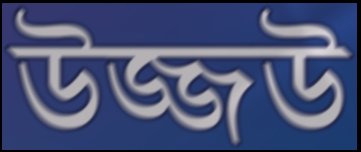
উজ্জউ